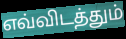
எவ்விடத்தும்